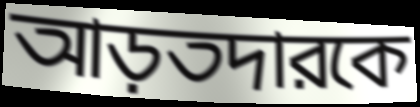
আড়তদারকে